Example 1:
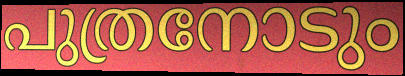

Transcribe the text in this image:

പുത്രനോടും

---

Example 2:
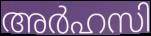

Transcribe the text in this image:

അർഹസി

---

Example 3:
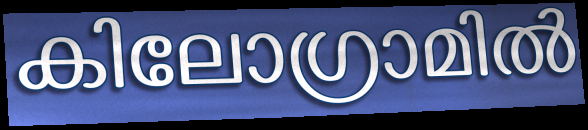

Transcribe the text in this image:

കിലോഗ്രാമിൽ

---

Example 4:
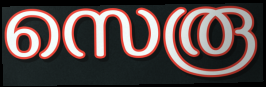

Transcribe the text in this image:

സെരൂ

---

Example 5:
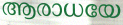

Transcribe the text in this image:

ആരാധയേ